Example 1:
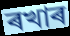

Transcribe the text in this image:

ৰখাৰ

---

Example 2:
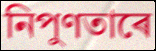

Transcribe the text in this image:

নিপুণতাৰে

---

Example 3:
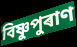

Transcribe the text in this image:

বিষ্ণুপুৰাণ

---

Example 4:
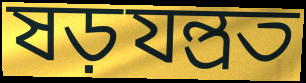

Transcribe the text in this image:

ষড়যন্ত্ৰত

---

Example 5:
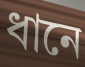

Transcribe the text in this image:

ধানে